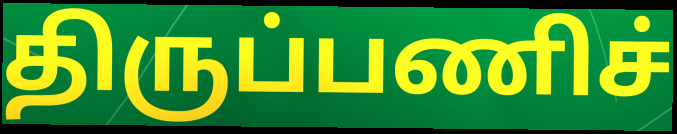
திருப்பணிச்